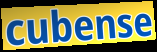
cubense